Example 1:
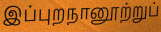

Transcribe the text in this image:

இப்புறநானூற்றுப்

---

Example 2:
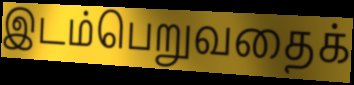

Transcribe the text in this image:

இடம்பெறுவதைக்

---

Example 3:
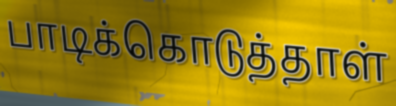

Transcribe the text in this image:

பாடிக்கொடுத்தாள்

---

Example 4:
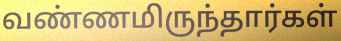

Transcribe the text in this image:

வண்ணமிருந்தார்கள்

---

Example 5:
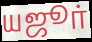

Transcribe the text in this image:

யஜூர்